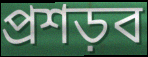
প্রশড়ব